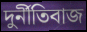
দুর্নীতিবাজ